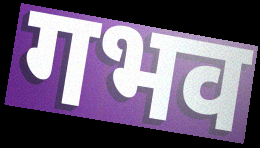
गभव